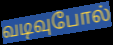
வடிவுபோல்